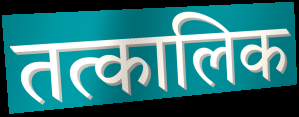
तत्कालिक